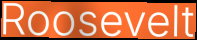
Roosevelt